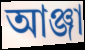
আঞ্জা